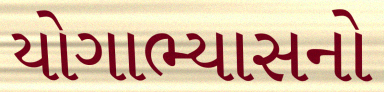
યોગાભ્યાસનો